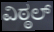
ವಿಠ್ಠಲ್